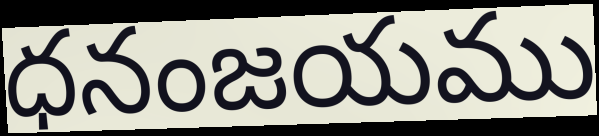
ధనంజయము